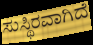
ಸುಸ್ಥಿರವಾಗಿದೆ